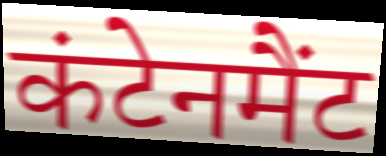
कंटेनमैंट